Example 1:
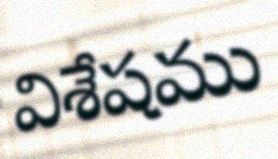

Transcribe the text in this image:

విశేషము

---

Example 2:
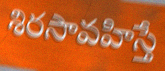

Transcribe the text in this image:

శిరసావహిస్తే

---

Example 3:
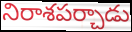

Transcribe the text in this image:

నిరాశపర్చాడు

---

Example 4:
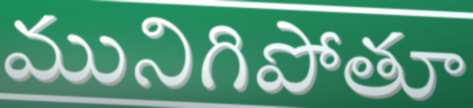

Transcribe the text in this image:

మునిగిపోతూ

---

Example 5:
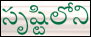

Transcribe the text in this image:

సృష్టిలోని